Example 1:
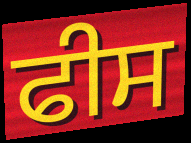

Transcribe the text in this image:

ਫੀਸ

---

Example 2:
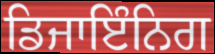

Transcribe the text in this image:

ਡਿਜਾਇੰਨਿਗ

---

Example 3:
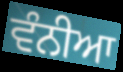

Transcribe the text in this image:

ਵੰਨੀਆ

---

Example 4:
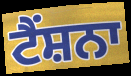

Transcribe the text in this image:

ਟੈਂਸ਼ਨਾ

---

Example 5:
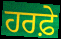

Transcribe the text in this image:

ਹਰਫ਼ੇ